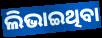
ଲିଭାଇଥିବା